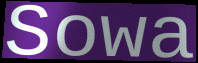
Sowa